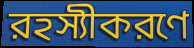
রহস্যীকরণে